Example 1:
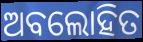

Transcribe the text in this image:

ଅବଲୋହିତ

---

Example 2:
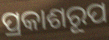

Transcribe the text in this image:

ପ୍ରକାଶରୂପ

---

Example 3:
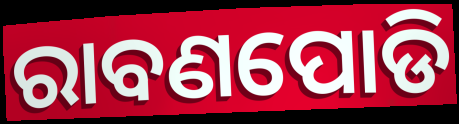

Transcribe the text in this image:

ରାବଣପୋଡି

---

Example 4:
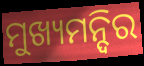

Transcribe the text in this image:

ମୁଖ୍ୟମନ୍ଦିର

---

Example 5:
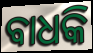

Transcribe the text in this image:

ବାଧକି